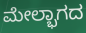
ಮೇಲ್ಭಾಗದ